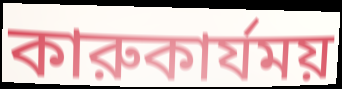
কারুকার্যময়